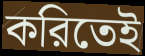
করিতেই